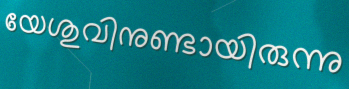
യേശുവിനുണ്ടായിരുന്നു